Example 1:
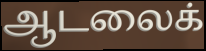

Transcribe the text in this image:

ஆடலைக்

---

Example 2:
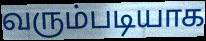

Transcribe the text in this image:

வரும்படியாக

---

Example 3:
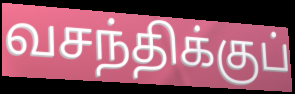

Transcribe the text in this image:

வசந்திக்குப்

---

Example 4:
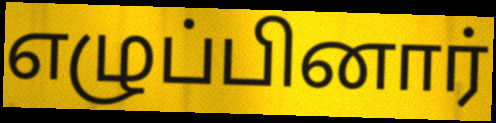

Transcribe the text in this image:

எழுப்பினார்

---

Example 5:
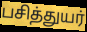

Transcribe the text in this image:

பசித்துயர்